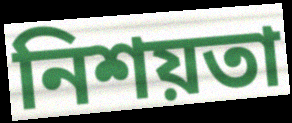
নিশয়তা